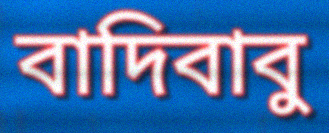
বাদিবাবু